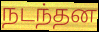
நடந்தன